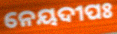
ନେୟଦୀପଃ